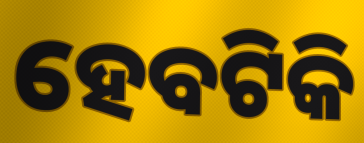
ହେବଟିକି